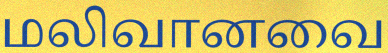
மலிவானவை